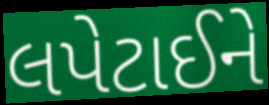
લપેટાઈને